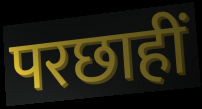
परछाहीं